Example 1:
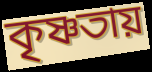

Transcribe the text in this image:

কৃষ্ণতায়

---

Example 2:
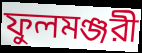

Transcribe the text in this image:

ফুলমঞ্জরী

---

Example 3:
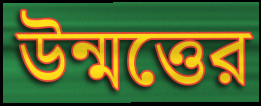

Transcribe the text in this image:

উন্মত্তের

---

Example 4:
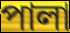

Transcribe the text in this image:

পালা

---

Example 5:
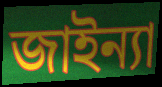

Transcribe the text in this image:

জাইন্যা